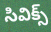
సివిక్స్